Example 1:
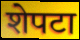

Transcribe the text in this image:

शेपटा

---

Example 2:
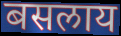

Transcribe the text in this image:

बसलाय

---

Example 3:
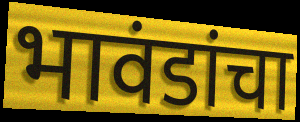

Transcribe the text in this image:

भावंडांचा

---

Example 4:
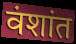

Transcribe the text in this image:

वंशांत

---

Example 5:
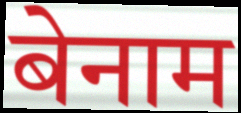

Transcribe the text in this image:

बेनाम